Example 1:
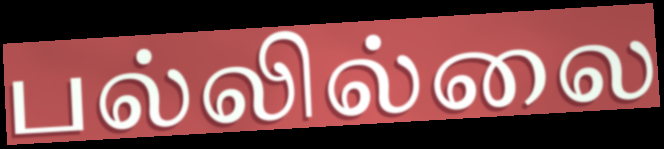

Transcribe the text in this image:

பல்லில்லை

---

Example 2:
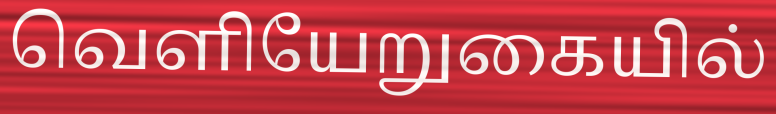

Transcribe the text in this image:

வெளியேறுகையில்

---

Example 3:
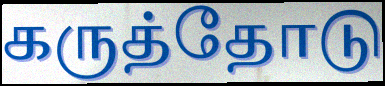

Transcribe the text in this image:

கருத்தோடு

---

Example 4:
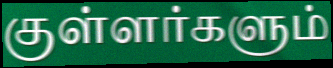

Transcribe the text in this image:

குள்ளர்களும்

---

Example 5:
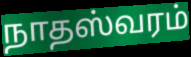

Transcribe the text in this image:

நாதஸ்வரம்